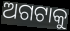
ଅଗଟାକୁ